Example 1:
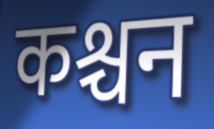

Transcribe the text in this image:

कश्चन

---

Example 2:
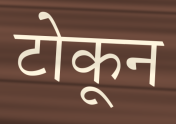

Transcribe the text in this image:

टोकून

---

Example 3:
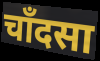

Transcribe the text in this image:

चाँदसा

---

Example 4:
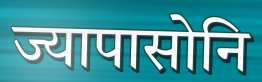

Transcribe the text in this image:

ज्यापासोनि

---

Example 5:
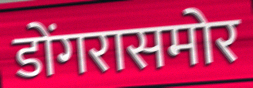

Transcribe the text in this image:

डोंगरासमोर